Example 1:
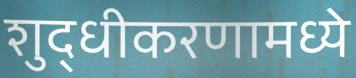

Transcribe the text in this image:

शुद्धीकरणामध्ये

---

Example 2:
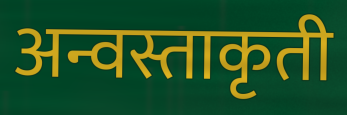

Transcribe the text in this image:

अन्वस्ताकृती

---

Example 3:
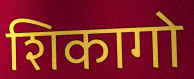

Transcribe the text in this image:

शिकागो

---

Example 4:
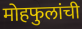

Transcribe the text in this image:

मोहफुलांची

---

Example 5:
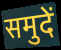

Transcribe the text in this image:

समुदें